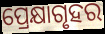
ପ୍ରେକ୍ଷାଗୃହର